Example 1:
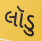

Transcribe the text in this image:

લૉડુ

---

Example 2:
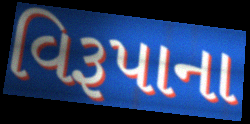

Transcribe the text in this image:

વિરૂપાના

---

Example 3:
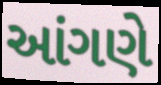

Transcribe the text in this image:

આંગણે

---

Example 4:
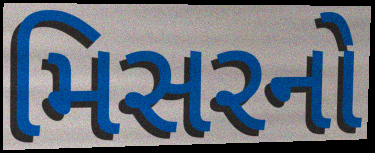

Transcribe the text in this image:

મિસરનો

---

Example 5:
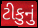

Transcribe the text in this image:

ટીકુનું